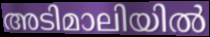
അടിമാലിയിൽ